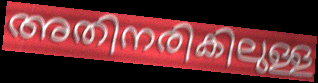
അതിനരികിലുള്ള